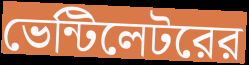
ভেন্টিলেটরের